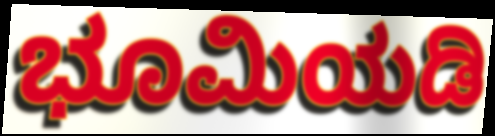
ಭೂಮಿಯಡಿ